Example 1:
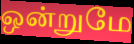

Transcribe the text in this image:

ஒன்றுமே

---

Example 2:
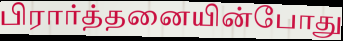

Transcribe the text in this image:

பிரார்த்தனையின்போது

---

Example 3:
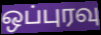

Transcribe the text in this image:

ஒப்புரவு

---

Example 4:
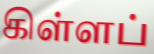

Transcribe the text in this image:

கிள்ளப்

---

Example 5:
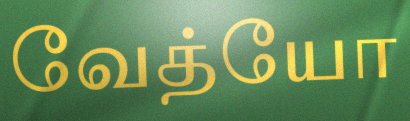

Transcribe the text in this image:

வேத்யோ